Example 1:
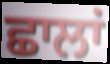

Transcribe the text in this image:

ਛਾਲਾਂ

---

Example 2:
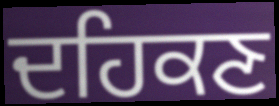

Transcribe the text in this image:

ਦਹਿਕਣ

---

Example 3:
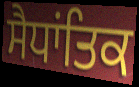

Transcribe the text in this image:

ਸੈਧਾਂਤਿਕ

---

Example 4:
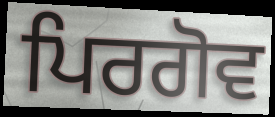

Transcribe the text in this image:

ਪਿਰਗੋਵ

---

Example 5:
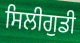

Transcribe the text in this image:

ਸਿਲੀਗੁਡੀ